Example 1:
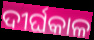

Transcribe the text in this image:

ଦୀର୍ଘକାଳ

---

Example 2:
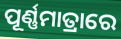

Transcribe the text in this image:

ପୂର୍ଣ୍ଣମାତ୍ରାରେ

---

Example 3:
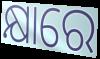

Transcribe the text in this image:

କ୍ଷାରେ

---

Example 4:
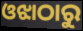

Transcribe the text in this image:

ଓଝାଠାରୁ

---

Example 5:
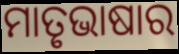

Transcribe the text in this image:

ମାତୃଭାଷାର